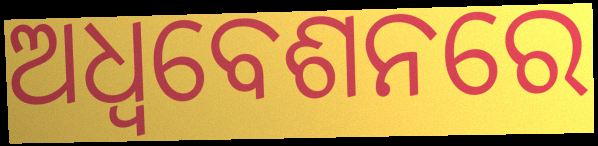
ଅଧ୍ଵବେଶନରେ